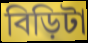
বিড়িটা